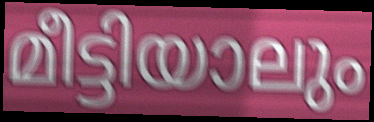
മീട്ടിയാലും